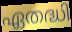
ഏതദ്ധി